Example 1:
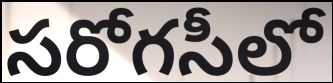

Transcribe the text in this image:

సరోగసీలో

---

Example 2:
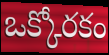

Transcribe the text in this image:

ఒక్కోరకం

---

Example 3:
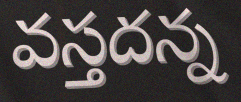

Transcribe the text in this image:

వస్తదన్న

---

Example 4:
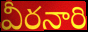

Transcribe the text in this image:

వీరనారి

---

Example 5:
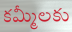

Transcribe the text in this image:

కమ్మీలకు